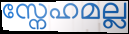
സ്നേഹമല്ല